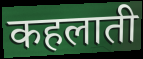
कहलाती